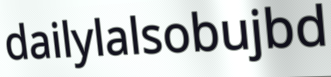
dailylalsobujbd